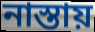
নাস্তায়